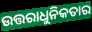
ଉତ୍ତରାଧୁନିକତାର